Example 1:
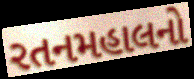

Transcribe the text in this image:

રતનમહાલનો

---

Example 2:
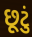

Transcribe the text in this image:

છૂટું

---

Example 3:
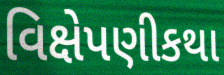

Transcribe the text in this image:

વિક્ષેપણીકથા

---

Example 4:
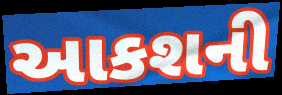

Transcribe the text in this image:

આકશની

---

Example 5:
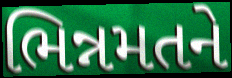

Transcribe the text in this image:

ભિન્નમતને